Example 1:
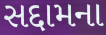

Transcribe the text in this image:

સદ્દામના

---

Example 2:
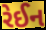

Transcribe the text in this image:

રેઈન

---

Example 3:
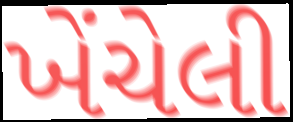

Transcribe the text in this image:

ખેંચેલી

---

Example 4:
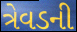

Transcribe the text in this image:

ત્રેવડની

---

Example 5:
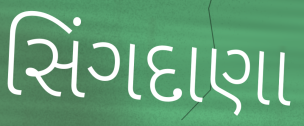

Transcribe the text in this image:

સિંગદાણા